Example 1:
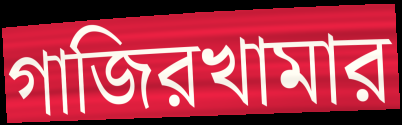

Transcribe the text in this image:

গাজিরখামার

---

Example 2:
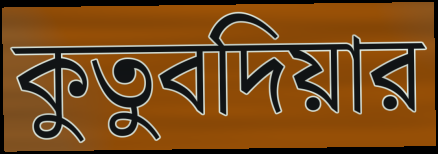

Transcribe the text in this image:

কুতুবদিয়ার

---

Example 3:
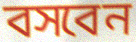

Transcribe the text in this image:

বসবেন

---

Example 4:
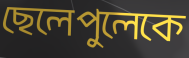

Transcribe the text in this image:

ছেলেপুলেকে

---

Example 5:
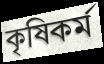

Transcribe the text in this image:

কৃষিকর্ম